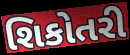
શિકોતરી